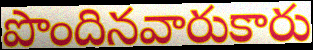
పొందినవారుకారు